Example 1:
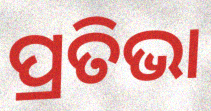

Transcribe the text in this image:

ପ୍ରତିଭା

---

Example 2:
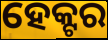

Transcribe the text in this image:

ହେକ୍ଟର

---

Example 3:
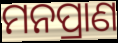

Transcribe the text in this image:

ମନପ୍ରାଣ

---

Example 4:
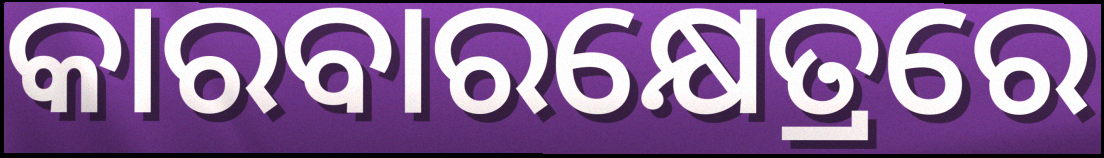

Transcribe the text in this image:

କାରବାରକ୍ଷେତ୍ରରେ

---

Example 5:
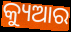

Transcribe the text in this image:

କ୍ୟୁଆର